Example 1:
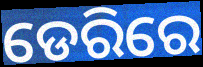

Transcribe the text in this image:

ଡେରିରେ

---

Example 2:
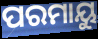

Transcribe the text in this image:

ପରମାୟୁ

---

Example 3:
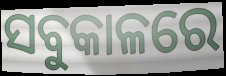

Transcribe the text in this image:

ସବୁକାଳରେ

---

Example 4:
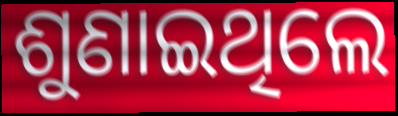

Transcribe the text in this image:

ଶୁଣାଇଥିଲେ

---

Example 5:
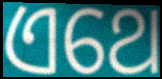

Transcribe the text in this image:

ଏଥେ